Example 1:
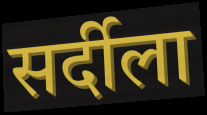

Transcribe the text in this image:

सर्दीला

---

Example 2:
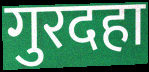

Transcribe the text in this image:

गुरदहा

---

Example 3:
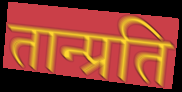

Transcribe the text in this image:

तान्प्रति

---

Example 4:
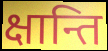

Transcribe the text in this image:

क्षान्ति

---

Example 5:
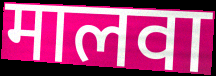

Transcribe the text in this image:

मालवा